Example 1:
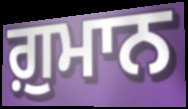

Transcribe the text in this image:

ਗ਼ੁਮਾਨ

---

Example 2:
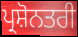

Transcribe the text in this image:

ਪ੍ਰਸ਼ੋਨਤਰੀ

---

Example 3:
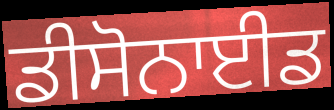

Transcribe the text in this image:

ਡੀਸੋਨਾਈਡ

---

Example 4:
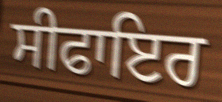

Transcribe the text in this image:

ਸੀਫਾਇਰ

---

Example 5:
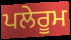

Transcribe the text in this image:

ਪਲੇਰੂਮ